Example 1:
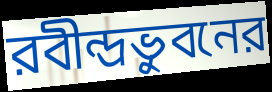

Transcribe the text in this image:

রবীন্দ্রভুবনের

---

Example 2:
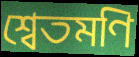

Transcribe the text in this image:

শ্বেতমণি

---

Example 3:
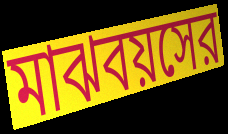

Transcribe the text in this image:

মাঝবয়সের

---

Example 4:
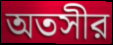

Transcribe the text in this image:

অতসীর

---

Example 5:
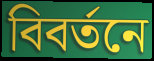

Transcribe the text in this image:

বিবর্তনে